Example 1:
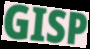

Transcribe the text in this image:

GISP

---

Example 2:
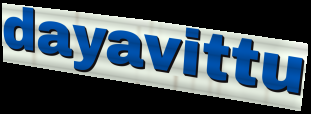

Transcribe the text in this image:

dayavittu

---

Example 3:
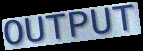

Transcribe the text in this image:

OUTPUT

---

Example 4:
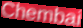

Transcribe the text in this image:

Chembai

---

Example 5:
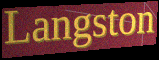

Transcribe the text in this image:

Langston